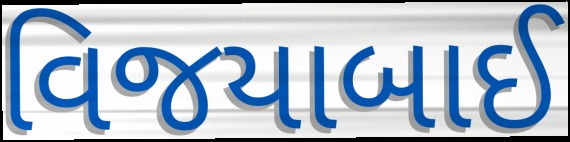
વિજયાબાઈ